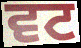
ਵਟ